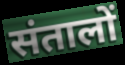
संतालों